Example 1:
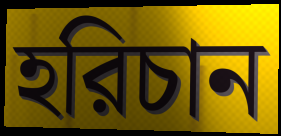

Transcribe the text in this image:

হরিচান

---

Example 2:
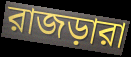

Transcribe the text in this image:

রাজড়ারা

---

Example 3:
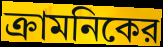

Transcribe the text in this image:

ক্রামনিকের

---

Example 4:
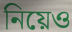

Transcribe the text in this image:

নিয়েও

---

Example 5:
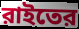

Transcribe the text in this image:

রাইতের